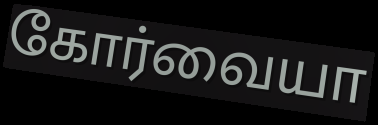
கோர்வையா